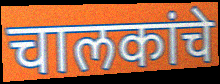
चालकांचे